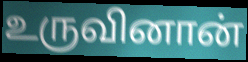
உருவினான்